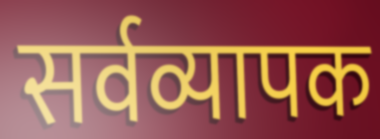
सर्वव्यापक